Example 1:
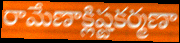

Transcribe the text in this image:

రామేణాక్లిష్టకర్మణా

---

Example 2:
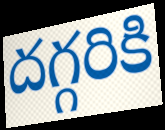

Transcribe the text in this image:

దగ్గరికి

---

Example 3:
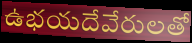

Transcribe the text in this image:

ఉభయదేవేరులతో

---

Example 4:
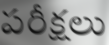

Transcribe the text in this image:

పరీక్షలు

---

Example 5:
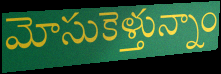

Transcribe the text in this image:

మోసుకెళ్తున్నాం